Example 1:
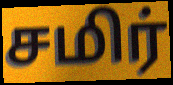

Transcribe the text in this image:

சமிர்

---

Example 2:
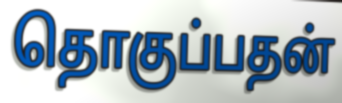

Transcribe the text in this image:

தொகுப்பதன்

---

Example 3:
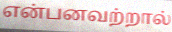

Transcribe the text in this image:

என்பனவற்றால்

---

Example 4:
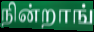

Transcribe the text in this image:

நின்றாங்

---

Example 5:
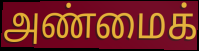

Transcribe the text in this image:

அண்மைக்